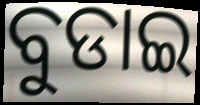
ବୁଡାଇ